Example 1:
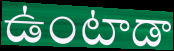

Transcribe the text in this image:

ఉంటాడా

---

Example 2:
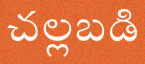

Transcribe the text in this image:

చల్లబడి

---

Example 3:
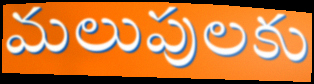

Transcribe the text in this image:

మలుపులకు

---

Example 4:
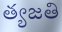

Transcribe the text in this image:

త్యజతి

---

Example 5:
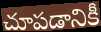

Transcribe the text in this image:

చూపడానికీ